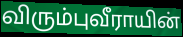
விரும்புவீராயின்